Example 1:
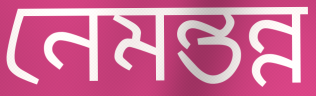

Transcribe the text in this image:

নেমন্তন্ন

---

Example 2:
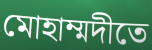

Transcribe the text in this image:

মোহাম্মদীতে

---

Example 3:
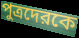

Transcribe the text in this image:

পুত্রদেরকে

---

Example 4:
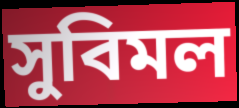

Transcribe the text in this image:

সুবিমল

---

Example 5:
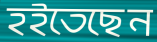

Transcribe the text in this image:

হইতেছেন